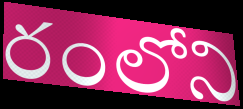
రంలోని